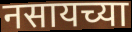
नसायच्या